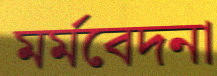
মৰ্মবেদনা